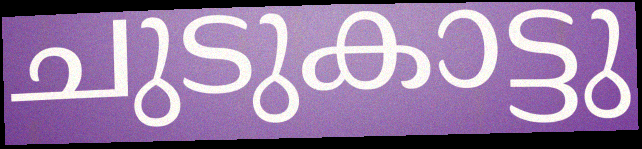
ചുടുകാട്ടു